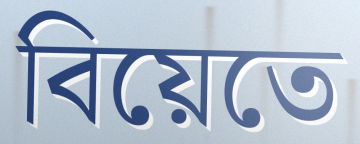
বিয়েতে